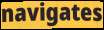
navigates